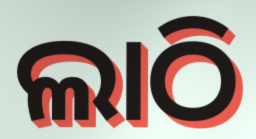
ଲାଠି